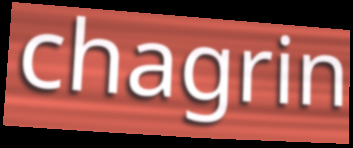
chagrin